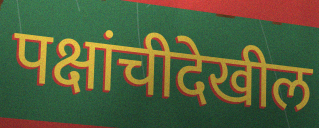
पक्षांचीदेखील